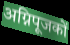
अग्निपूजकों